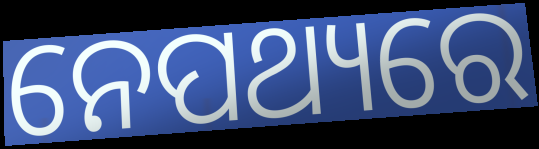
ନେପଥ୍ୟରେ